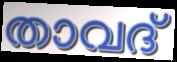
താവദ്